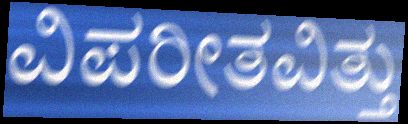
ವಿಪರೀತವಿತ್ತು